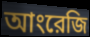
আংরেজি